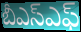
బీఎస్ఎఫ్